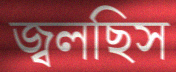
জ্বলছিস